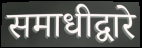
समाधीद्वारे